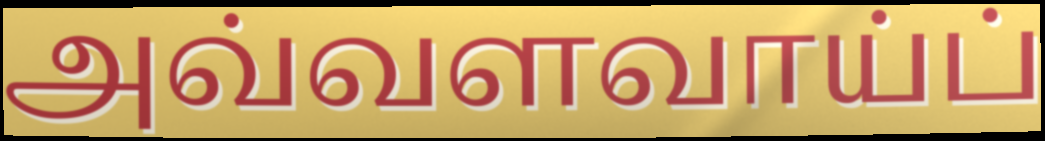
அவ்வளவாய்ப்